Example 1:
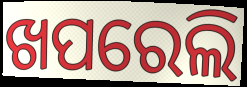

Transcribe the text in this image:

ଖପରେଲି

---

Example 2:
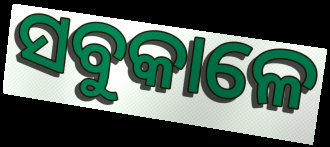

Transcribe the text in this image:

ସବୁକାଳେ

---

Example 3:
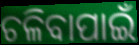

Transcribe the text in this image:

ଚଳିବାପାଇଁ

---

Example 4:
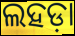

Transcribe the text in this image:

ଲହଡ଼ା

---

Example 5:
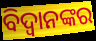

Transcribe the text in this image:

ବିଦ୍ୱାନଙ୍କର